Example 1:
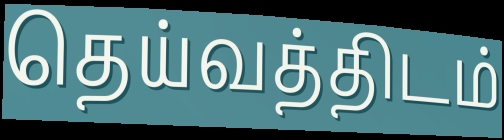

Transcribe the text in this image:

தெய்வத்திடம்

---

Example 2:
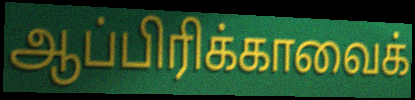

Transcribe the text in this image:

ஆப்பிரிக்காவைக்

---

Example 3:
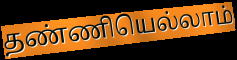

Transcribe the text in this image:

தண்ணியெல்லாம்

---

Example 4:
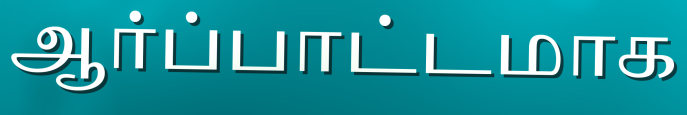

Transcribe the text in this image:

ஆர்ப்பாட்டமாக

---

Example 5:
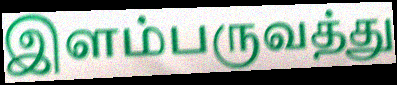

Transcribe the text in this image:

இளம்பருவத்து